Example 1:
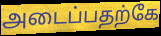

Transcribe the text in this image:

அடைப்பதற்கே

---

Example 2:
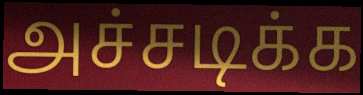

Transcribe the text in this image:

அச்சடிக்க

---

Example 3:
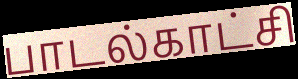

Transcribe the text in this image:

பாடல்காட்சி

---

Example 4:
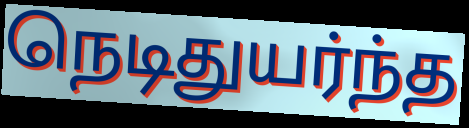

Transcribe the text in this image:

நெடிதுயர்ந்த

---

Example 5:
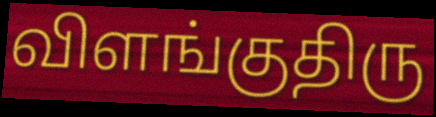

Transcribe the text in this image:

விளங்குதிரு